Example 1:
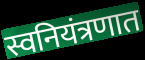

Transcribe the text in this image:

स्वनियंत्रणात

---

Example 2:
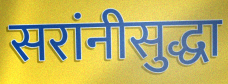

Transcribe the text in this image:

सरांनीसुद्धा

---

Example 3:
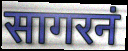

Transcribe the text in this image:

सागरनं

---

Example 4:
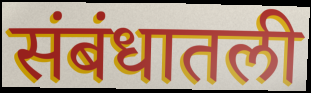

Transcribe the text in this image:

संबंधातली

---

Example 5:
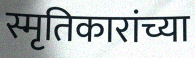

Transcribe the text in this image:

स्मृतिकारांच्या